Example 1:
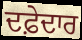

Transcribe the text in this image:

ਦਫ਼ੇਦਾਰ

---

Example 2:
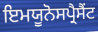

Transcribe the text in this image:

ਇਮਯੂਨੋਸਪ੍ਰੈਸੈਂਟ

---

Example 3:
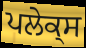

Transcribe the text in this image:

ਪਲੇਕ੍ਸ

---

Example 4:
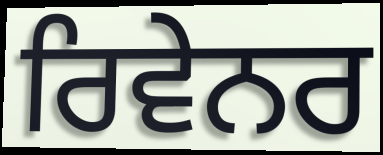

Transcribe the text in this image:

ਰਿਵੇਨਰ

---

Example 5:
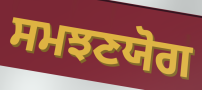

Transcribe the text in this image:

ਸਮਝਣਯੋਗ